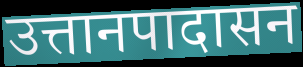
उत्तानपादासन